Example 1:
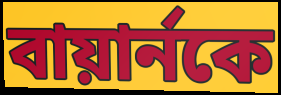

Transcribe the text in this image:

বায়ার্নকে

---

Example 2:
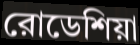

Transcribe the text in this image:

রোডেশিয়া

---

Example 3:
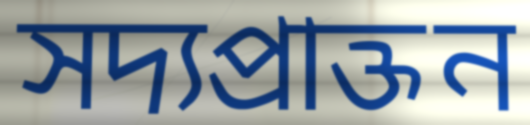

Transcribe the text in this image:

সদ্যপ্রাক্তন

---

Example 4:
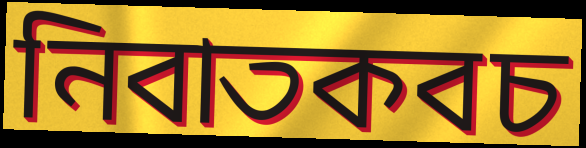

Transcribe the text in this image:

নিবাতকবচ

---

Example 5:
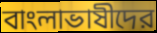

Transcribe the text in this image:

বাংলাভাষীদের